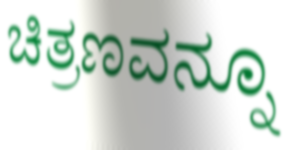
ಚಿತ್ರಣವನ್ನೂ